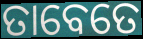
ତାବେତେ